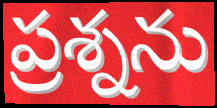
ప్రశ్నను